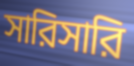
সারিসারি